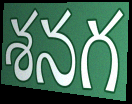
శనగ